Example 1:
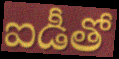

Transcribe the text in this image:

ఐడీతో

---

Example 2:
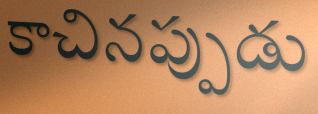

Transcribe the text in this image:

కాచినప్పుడు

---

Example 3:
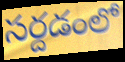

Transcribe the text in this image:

సర్దడంలో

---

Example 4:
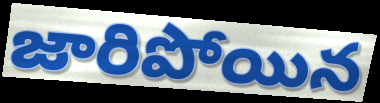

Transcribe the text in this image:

జారిపోయిన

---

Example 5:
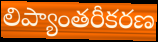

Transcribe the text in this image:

లిప్యాంతరీకరణ